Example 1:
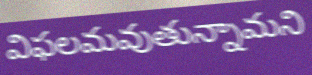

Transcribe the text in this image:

విఫలమవుతున్నామని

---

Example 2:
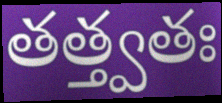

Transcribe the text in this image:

తత్త్వతః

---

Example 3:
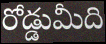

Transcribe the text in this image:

రోడ్డుమీది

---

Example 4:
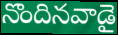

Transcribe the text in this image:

నొందినవాడై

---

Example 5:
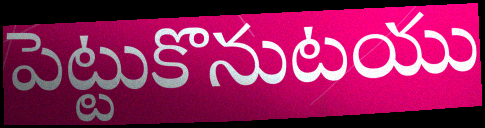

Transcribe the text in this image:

పెట్టుకొనుటయు